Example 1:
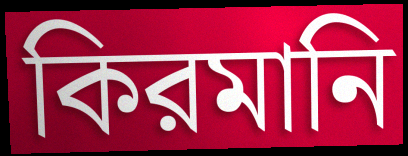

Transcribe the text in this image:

কিরমানি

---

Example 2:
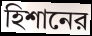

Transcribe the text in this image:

হিশানের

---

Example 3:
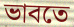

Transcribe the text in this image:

ভাবতে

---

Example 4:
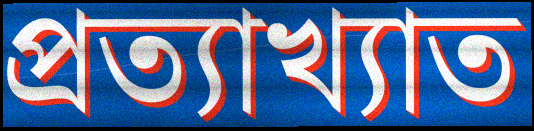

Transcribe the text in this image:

প্রত্যাখ্যাত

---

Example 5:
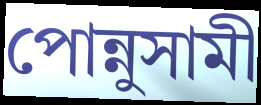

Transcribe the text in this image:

পোন্নুসামী